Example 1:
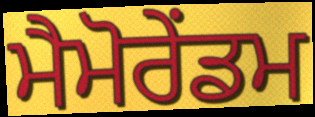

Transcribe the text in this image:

ਮੈਮੋਰੇਂਡਮ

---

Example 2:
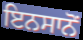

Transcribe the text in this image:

ਇਨਸਾਨੋਂ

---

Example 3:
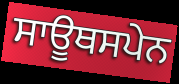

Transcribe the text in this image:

ਸਾਊਥਸਪੇਨ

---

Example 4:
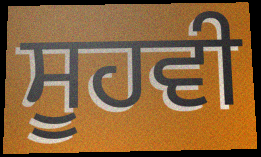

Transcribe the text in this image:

ਸੂਹਵੀ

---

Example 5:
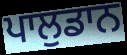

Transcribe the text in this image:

ਪਾਲੁਡਾਨ